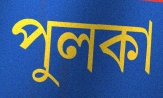
পুলকা